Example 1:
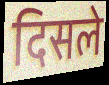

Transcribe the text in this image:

दिसले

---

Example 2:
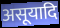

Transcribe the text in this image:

असूयादि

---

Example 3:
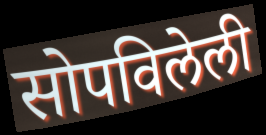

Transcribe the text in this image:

सोपविलेली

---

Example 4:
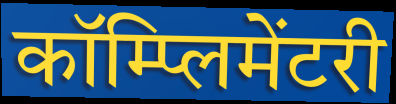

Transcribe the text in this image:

कॉम्प्लिमेंटरी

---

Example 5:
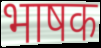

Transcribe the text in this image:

भाषक